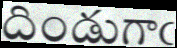
దిండుగాఁ